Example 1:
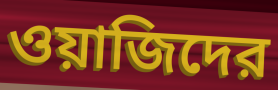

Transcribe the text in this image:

ওয়াজিদের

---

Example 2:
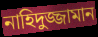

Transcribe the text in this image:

নাহিদুজ্জামান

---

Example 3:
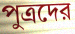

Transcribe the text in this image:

পুত্রদের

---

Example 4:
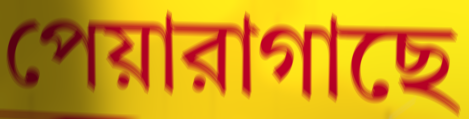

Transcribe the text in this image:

পেয়ারাগাছে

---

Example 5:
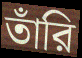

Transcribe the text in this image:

তাঁরি